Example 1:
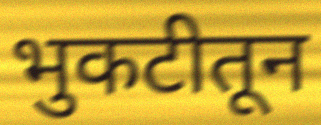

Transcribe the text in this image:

भुकटीतून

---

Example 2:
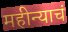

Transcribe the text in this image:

महीन्याचं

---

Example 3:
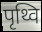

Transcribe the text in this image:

पृथ्वि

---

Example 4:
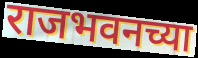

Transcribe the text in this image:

राजभवनच्या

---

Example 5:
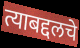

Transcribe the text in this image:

त्याबद्दलचे